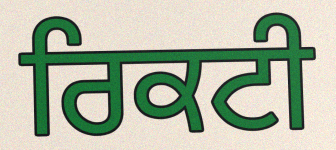
ਰਿਕਟੀ